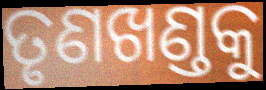
ତୃଣଖଣ୍ଡକୁ